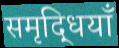
समृद्धियाँ